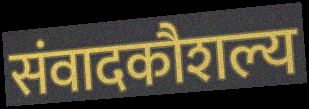
संवादकौशल्य